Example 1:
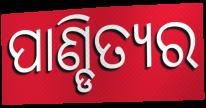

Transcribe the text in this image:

ପାଣ୍ଡିତ୍ୟର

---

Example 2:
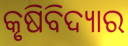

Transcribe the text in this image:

କୃଷିବିଦ୍ୟାର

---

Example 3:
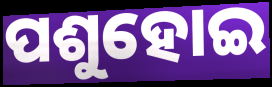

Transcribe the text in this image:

ପଶୁହୋଇ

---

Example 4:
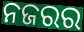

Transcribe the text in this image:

ନଜରର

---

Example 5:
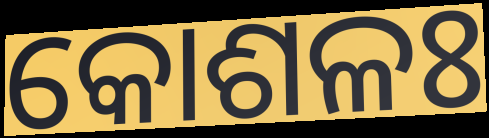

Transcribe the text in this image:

କୋଶଳଃ